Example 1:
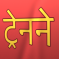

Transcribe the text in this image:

ट्रेनने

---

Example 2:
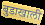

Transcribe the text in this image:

बुडाखाली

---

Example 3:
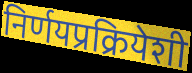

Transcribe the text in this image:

निर्णयप्रक्रियेशी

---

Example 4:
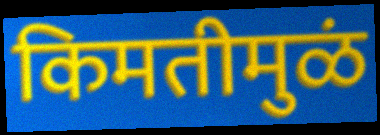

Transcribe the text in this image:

किमतीमुळं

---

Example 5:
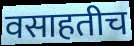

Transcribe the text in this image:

वसाहतीच